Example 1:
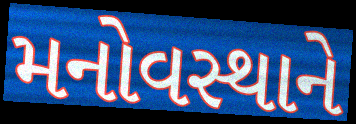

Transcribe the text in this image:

મનોવસ્થાને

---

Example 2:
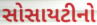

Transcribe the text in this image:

સોસાયટીનો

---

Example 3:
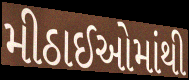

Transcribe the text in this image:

મીઠાઈઓમાંથી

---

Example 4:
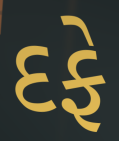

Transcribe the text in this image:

દફે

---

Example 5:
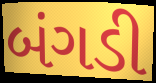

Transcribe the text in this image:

બંગડી